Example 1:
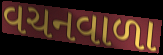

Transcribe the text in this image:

વચનવાળા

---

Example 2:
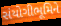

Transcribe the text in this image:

સંયોગીભૂમિને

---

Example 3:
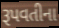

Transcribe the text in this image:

રૂપવતીના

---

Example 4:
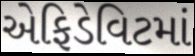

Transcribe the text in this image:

એફિડેવિટમાં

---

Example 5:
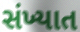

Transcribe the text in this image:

સંખ્યાત